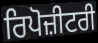
ਰਿਪੋਜ਼ੀਟਰੀ